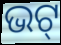
ଭଟ୍